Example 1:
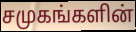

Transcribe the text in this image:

சமுகங்களின்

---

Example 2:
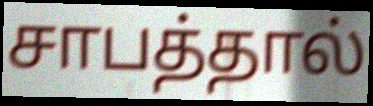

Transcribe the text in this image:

சாபத்தால்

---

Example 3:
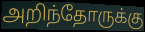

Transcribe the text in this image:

அறிந்தோருக்கு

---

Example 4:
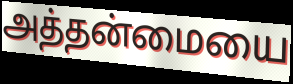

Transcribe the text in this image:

அத்தன்மையை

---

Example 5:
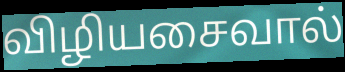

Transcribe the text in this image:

விழியசைவால்